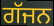
ਗੱਜਨ